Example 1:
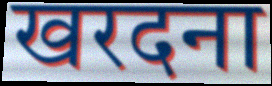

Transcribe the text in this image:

खरदना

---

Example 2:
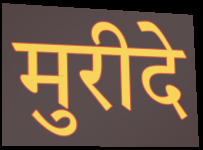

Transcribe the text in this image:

मुरीदे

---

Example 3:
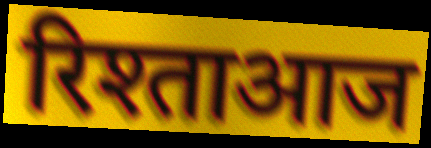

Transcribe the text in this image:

रिश्ताआज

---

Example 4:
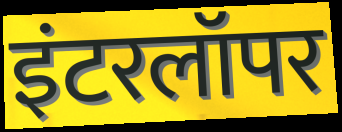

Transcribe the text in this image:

इंटरलॉपर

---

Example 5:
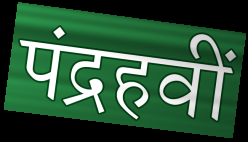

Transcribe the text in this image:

पंद्रहवीं